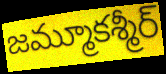
జమ్మూకశ్మీర్